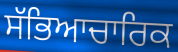
ਸੱਭਿਆਚਾਰਿਕ